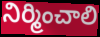
నిర్మించాలి